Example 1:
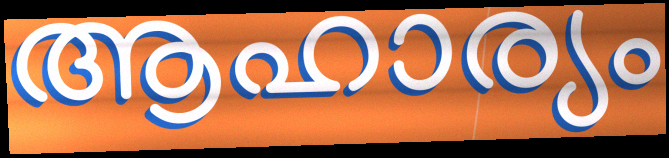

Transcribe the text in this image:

ആഹാര്യം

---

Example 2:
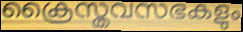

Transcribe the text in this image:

ക്രൈസ്തവസഭകളും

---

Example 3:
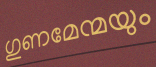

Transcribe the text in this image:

ഗുണമേന്മയും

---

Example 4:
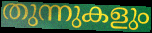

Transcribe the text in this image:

തുന്നുകളും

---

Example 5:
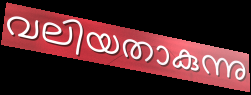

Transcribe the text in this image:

വലിയതാകുന്നു